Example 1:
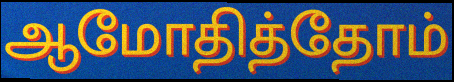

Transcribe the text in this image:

ஆமோதித்தோம்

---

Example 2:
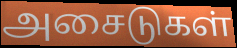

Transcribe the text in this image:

அசைடுகள்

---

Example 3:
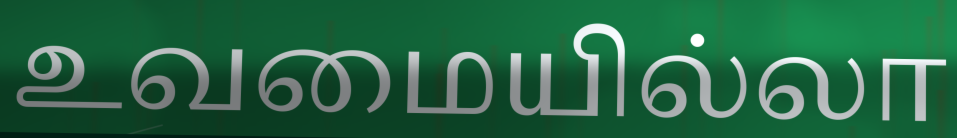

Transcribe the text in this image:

உவமையில்லா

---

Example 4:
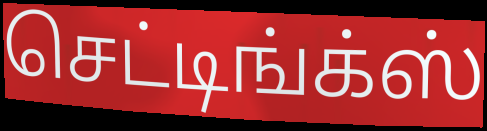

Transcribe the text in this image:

செட்டிங்க்ஸ்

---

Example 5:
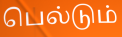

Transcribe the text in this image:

பெல்டும்